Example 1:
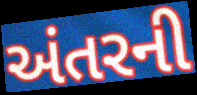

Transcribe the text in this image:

અંતરની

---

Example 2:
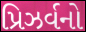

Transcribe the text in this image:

પ્રિઝર્વનો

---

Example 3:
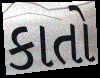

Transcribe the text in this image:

કાતો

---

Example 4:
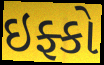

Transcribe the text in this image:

ઇફ્કો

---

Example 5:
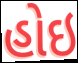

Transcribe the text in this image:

હોઇ